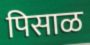
पिसाळ